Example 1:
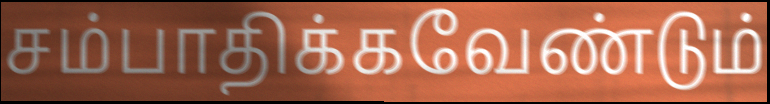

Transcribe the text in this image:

சம்பாதிக்கவேண்டும்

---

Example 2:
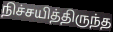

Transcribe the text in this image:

நிச்சயித்திருந்த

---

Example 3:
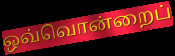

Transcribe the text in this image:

ஒவ்வொன்றைப்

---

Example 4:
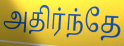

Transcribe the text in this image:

அதிர்ந்தே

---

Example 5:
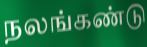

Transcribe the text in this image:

நலங்கண்டு